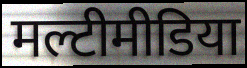
मल्टीमीडिया